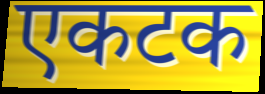
एकटक